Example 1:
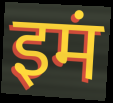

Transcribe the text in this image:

इमं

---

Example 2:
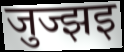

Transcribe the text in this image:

जुज्झइ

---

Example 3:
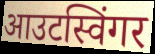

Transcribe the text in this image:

आउटस्विंगर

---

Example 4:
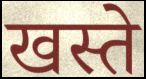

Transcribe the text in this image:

खस्ते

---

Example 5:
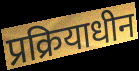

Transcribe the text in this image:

प्रक्रियाधीन